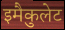
इमैकुलेट